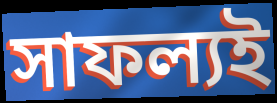
সাফল্যই